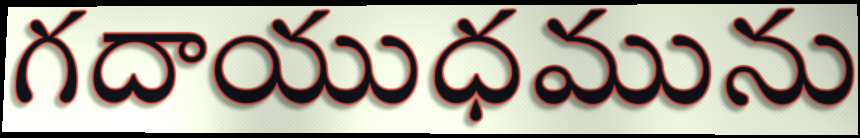
గదాయుధమును